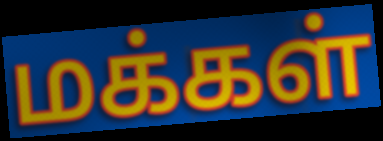
மக்கள்